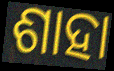
ଶାହା